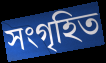
সংগৃহিত